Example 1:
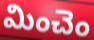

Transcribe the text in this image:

మించెం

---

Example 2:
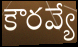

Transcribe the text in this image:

కౌరవ్యే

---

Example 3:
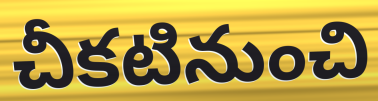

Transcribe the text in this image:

చీకటినుంచి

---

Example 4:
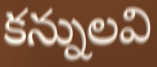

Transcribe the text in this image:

కన్నులవి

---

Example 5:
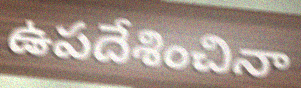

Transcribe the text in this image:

ఉపదేశించినా